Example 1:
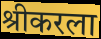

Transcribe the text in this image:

श्रीकरला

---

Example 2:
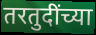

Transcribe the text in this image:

तरतुदींच्या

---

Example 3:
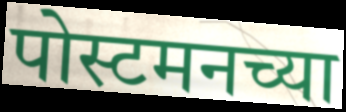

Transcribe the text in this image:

पोस्टमनच्या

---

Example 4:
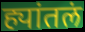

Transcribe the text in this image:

ह्यांतलं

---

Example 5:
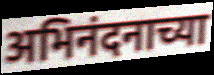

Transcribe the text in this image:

अभिनंदनाच्या